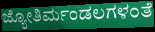
ಜ್ಯೋತಿರ್ಮಂಡಲಗಳಂತೆ